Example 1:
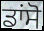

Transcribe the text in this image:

ਡਾਂਸੋ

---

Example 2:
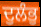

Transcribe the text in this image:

ਦੁਲੰਭੁ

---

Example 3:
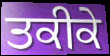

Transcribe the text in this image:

ਤਕੀਕੇ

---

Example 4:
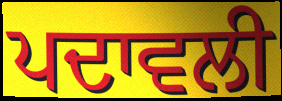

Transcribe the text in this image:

ਪਦਾਵਲੀ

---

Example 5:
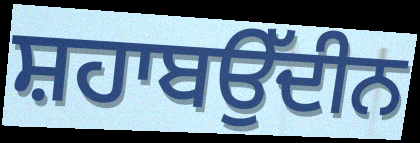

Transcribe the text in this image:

ਸ਼ਹਾਬਉੱਦੀਨ